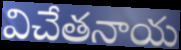
విచేతనాయ